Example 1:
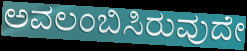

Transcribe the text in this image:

ಅವಲಂಬಿಸಿರುವುದೇ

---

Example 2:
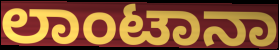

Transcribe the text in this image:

ಲಾಂಟಾನಾ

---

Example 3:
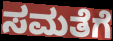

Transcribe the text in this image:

ಸಮತೆಗೆ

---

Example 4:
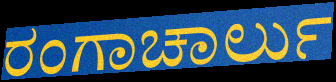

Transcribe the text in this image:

ರಂಗಾಚಾರ್ಲು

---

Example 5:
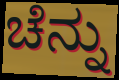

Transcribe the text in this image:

ಚೆನ್ನು